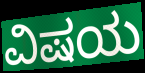
ವಿಷಯ